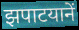
झपाटयानें